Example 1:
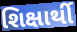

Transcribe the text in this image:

શિક્ષાર્થી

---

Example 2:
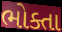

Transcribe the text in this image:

ભોક્તા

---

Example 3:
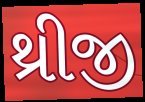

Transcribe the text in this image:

થ્રીજી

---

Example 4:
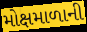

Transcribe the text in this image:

મોક્ષમાળાની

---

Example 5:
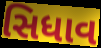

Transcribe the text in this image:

સિધાવ